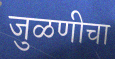
जुळणीचा